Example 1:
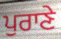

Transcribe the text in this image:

ਪੁਰਾਣੇ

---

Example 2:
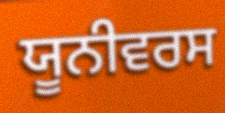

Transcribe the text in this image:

ਯੂਨੀਵਰਸ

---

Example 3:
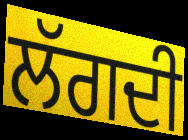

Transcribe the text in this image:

ਲੱਗਦੀ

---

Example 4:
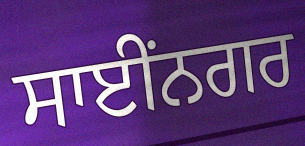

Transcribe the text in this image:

ਸਾਈਂਨਗਰ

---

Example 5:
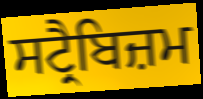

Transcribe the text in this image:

ਸਟ੍ਰੈਬਿਜ਼ਮ